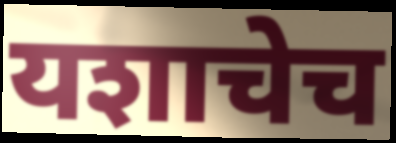
यशाचेच